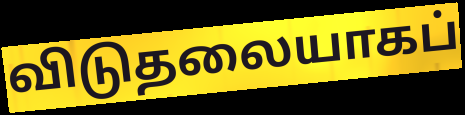
விடுதலையாகப்